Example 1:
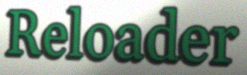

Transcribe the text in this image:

Reloader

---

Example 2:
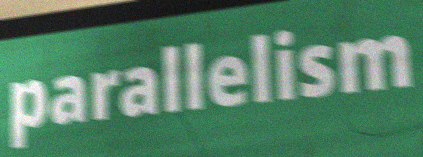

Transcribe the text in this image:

parallelism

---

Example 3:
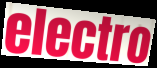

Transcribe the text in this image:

electro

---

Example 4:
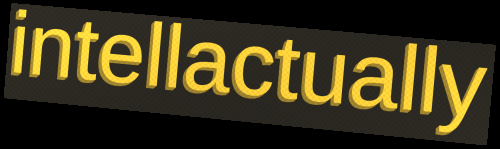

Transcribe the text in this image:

intellactually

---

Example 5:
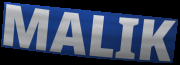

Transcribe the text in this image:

MALIK